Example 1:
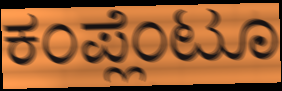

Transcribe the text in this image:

ಕಂಪ್ಲೆಂಟೂ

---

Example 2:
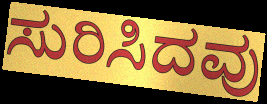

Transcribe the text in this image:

ಸುರಿಸಿದವು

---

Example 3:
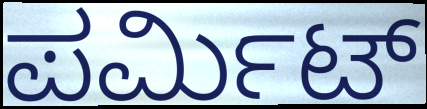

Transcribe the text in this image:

ಪರ್ಮಿಟ್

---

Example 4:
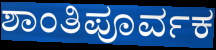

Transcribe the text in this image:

ಶಾಂತಿಪೂರ್ವಕ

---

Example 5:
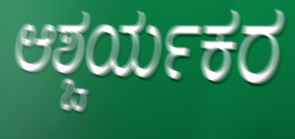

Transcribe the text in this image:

ಆಶ್ಚರ್ಯಕರ